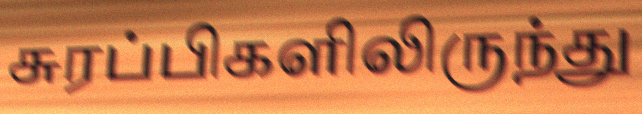
சுரப்பிகளிலிருந்து